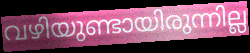
വഴിയുണ്ടായിരുന്നില്ല